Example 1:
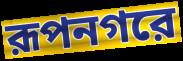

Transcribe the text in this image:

রূপনগরে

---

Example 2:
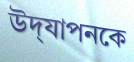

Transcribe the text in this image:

উদ্‌যাপনকে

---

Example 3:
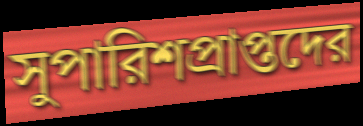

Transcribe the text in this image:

সুপারিশপ্রাপ্তদের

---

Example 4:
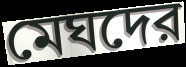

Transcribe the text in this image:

মেঘদের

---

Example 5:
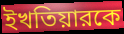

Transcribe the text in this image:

ইখতিয়ারকে